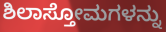
ಶಿಲಾಸ್ತೋಮಗಳನ್ನು